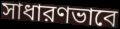
সাধারণভাবে